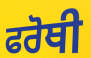
ਫਰੋਥੀ